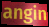
angin